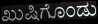
ಖುಷಿಗೊಂಡು